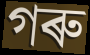
গৰু